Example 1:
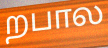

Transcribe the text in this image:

றபால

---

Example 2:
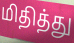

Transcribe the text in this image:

மிதித்து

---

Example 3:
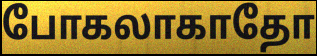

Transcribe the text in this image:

போகலாகாதோ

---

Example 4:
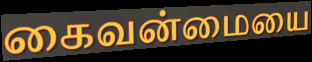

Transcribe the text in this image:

கைவன்மையை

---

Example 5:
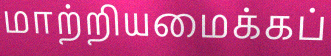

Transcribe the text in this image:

மாற்றியமைக்கப்